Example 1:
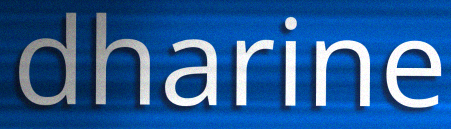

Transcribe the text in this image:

dharine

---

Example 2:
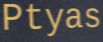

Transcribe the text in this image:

Ptyas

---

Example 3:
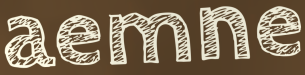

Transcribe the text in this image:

aemne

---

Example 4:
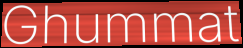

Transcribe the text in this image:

Ghummat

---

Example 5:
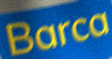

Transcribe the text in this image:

Barca